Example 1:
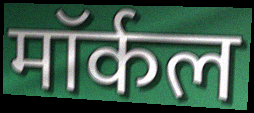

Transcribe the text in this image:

मॉर्कल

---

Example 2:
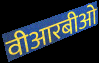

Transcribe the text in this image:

वीआरबीओ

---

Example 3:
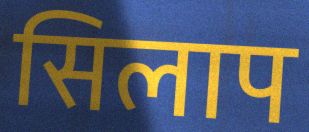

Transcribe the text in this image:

सिलाप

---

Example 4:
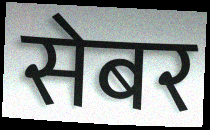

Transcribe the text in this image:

सेबर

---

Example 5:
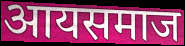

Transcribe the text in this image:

आयसमाज